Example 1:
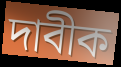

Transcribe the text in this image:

দাবীক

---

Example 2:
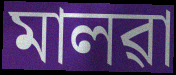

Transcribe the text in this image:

মালৱা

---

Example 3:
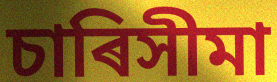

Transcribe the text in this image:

চাৰিসীমা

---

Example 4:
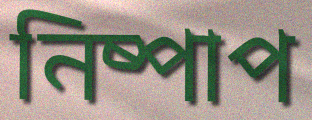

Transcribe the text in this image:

নিষ্পাপ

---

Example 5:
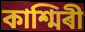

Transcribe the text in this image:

কাশ্মিৰী